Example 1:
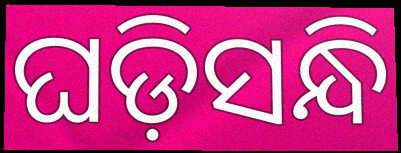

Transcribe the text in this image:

ଘଡ଼ିସନ୍ଧି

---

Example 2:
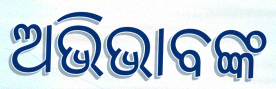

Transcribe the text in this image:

ଅଭିଭାବଙ୍କ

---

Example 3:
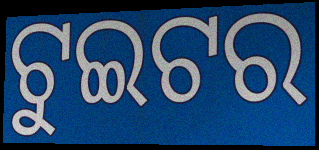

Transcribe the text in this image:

ଟୁଇଟର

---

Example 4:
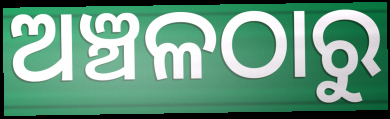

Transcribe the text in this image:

ଅଞ୍ଚଳଠାରୁ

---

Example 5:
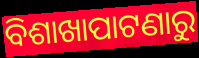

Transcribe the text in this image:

ବିଶାଖାପାଟଣାରୁ